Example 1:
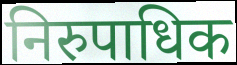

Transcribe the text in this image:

निरुपाधिक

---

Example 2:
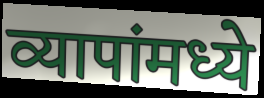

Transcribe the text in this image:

व्यापांमध्ये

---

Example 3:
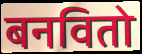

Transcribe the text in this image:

बनवितो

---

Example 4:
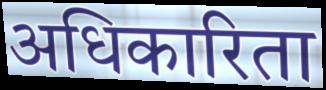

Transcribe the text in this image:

अधिकारिता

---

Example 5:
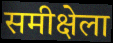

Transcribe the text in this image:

समीक्षेला